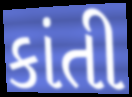
કાંતી